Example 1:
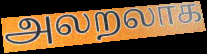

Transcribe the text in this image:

அலறலாக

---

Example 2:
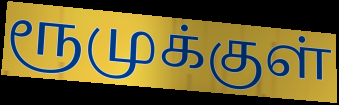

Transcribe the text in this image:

ரூமுக்குள்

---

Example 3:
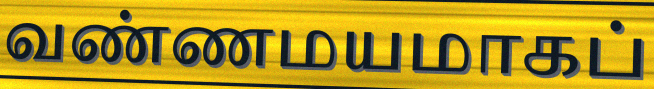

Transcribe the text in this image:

வண்ணமயமாகப்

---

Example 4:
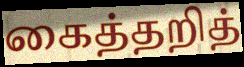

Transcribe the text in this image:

கைத்தறித்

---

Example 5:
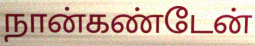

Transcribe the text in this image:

நான்கண்டேன்